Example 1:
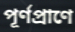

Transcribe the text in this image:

পূর্ণপ্রাণে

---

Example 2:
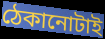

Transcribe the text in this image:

ঠেকানোটাই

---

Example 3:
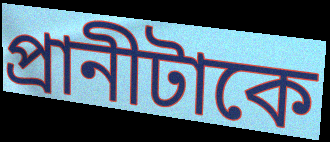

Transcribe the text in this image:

প্রানীটাকে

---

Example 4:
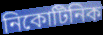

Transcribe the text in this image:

নিকোটিনিক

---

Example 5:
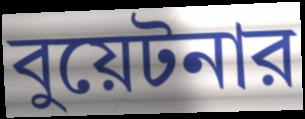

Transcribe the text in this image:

বুয়েটনার